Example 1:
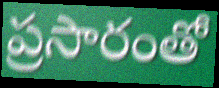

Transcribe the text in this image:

ప్రసారంతో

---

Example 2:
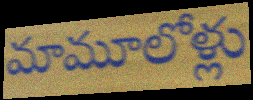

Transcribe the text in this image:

మామూలోళ్లు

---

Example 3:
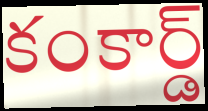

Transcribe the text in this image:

కంకార్డ్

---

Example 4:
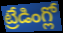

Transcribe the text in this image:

ట్రేడింగ్లో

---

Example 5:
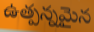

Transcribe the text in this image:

ఉత్పన్నమైన